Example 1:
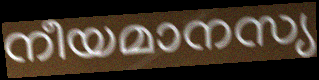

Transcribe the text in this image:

നീയമാനസ്യ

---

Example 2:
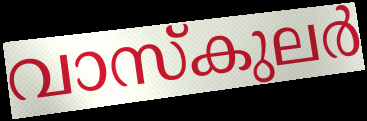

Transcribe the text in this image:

വാസ്കുലർ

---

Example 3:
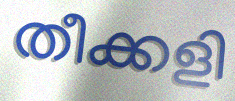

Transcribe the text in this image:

തീക്കളി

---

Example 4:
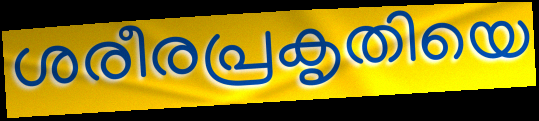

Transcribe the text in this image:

ശരീരപ്രകൃതിയെ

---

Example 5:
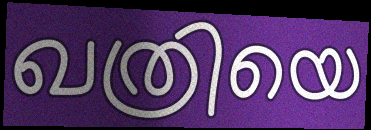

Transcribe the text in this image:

ഖത്രിയെ